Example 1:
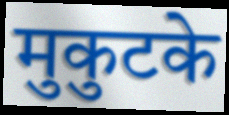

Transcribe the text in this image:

मुकुटके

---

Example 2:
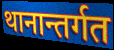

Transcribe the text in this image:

थानान्तर्गत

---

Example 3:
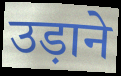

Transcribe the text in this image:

उड़ाने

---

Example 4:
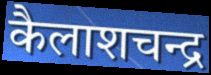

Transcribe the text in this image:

कैलाशचन्द्र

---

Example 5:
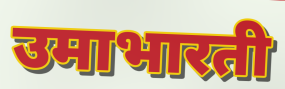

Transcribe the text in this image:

उमाभारती